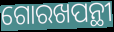
ଗୋରଖପନ୍ଥୀ